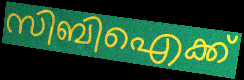
സിബിഐക്ക്